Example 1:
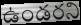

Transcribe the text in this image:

ఉండరని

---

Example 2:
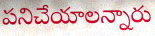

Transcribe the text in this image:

పనిచేయాలన్నారు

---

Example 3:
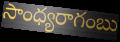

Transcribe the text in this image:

సాంధ్యరాగంబు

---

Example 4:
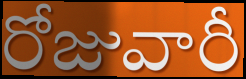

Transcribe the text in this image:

రోజువారీ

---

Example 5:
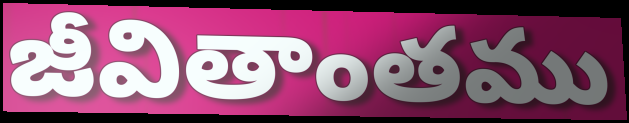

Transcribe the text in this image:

జీవితాంతము